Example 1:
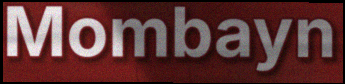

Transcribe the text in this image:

Mombayn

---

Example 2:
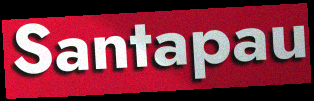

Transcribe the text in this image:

Santapau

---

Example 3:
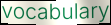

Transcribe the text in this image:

vocabulary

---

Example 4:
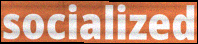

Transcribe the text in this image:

socialized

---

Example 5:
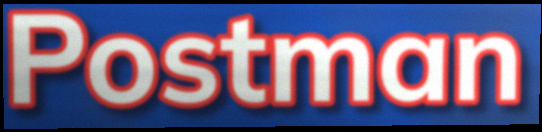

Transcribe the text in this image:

Postman